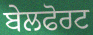
ਬੇਲਫੋਰਟ